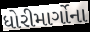
ધોરીમાર્ગોના